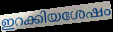
ഇറക്കിയശേഷം